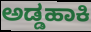
ಅಡ್ಡಹಾಕಿ